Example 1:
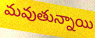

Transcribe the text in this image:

మవుతున్నాయి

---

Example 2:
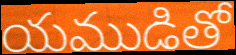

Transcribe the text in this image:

యముడితో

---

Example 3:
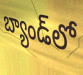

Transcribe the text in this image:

బ్యాండ్‌లో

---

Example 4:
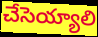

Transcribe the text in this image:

చేసెయ్యాలి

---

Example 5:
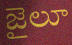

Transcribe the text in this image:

జైలూ